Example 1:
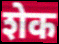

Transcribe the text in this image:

शेक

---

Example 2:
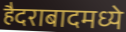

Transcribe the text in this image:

हैदराबादमध्ये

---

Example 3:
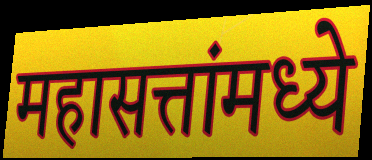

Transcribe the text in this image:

महासत्तांमध्ये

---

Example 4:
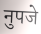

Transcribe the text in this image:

नुपजे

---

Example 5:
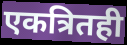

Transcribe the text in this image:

एकत्रितही